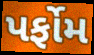
પર્ફોમ